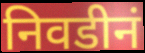
निवडीनं